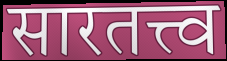
सारतत्त्व